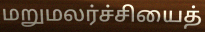
மறுமலர்ச்சியைத்